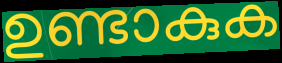
ഉണ്ടാകുക